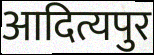
आदित्यपुर